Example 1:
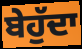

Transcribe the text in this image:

ਬੇਹੁੱਦਾ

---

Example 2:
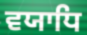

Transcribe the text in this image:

ਵਯਾਧਿ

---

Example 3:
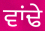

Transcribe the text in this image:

ਵਾਂਢੇ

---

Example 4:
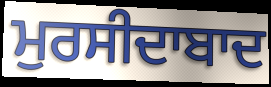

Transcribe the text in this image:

ਮੁਰਸੀਦਾਬਾਦ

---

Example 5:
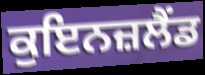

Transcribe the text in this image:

ਕੁਇਨਜ਼ਲੈਂਡ